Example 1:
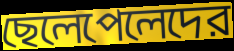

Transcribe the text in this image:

ছেলেপেলেদের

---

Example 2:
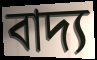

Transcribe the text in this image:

বাদ্য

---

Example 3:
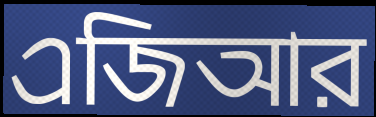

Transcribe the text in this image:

এজিআর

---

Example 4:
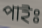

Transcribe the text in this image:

পাইঃ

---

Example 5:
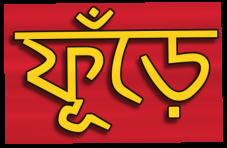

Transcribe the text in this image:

ফূঁড়ে